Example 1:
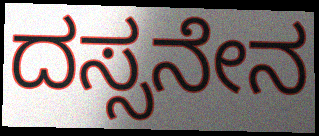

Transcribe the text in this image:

ದಸ್ಸನೇನ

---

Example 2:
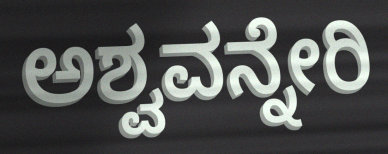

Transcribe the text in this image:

ಅಶ್ವವನ್ನೇರಿ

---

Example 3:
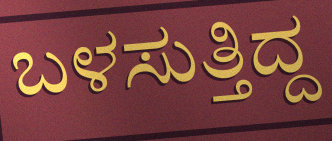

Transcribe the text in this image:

ಬಳಸುತ್ತಿದ್ದ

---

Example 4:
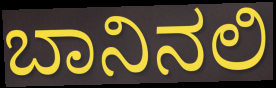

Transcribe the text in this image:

ಬಾನಿನಲಿ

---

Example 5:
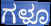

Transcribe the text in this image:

ಗಳೂ